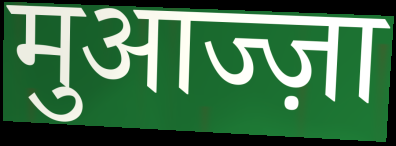
मुआज्ज़ा